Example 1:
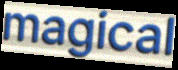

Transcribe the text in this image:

magical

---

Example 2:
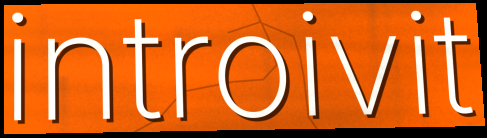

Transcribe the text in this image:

introivit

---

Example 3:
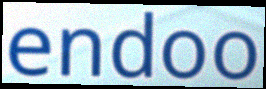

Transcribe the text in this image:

endoo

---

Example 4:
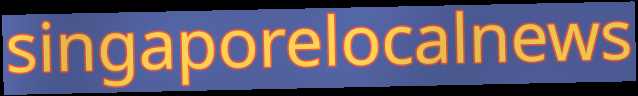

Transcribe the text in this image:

singaporelocalnews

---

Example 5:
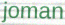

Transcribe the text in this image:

joman